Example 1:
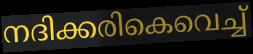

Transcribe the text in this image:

നദിക്കരികെവെച്ച്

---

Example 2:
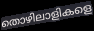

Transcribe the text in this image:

തൊഴിലാളികളെ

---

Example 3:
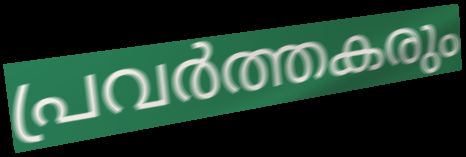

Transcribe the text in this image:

പ്രവർത്തകരും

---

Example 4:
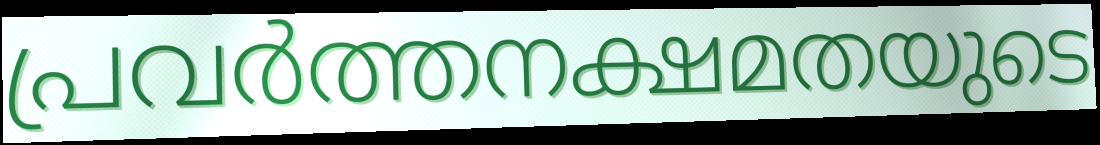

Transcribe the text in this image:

പ്രവർത്തനക്ഷമതയുടെ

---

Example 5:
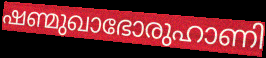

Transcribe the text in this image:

ഷണ്മുഖാഭോരുഹാണി